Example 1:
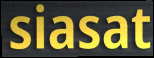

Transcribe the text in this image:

siasat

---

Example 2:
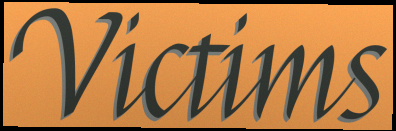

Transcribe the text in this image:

Victims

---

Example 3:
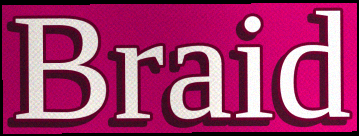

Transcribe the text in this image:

Braid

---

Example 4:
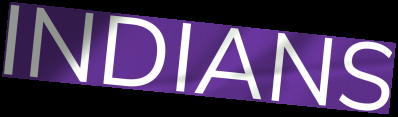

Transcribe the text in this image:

INDIANS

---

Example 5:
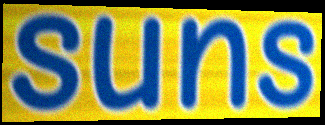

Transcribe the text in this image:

suns